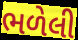
ભળેલી